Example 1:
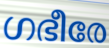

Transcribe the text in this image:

ഗഭീരേ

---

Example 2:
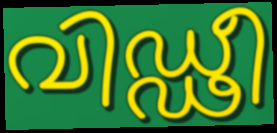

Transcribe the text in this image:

വിഡ്ഢീ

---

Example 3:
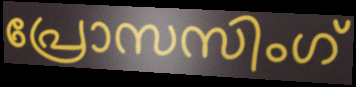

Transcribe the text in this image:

പ്രോസസിംഗ്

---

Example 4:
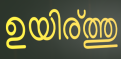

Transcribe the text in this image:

ഉയിര്ത്തു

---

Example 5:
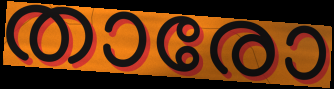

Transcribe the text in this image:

താരോ